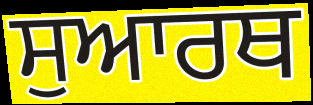
ਸੁਆਰਥ